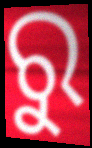
ରୁ